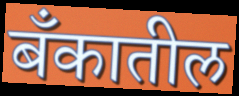
बँकातील